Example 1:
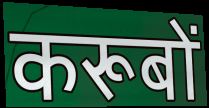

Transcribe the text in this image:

करूबों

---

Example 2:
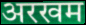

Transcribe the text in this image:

अरखम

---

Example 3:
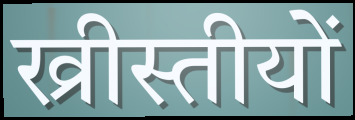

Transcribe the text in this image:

ख्रीस्तीयों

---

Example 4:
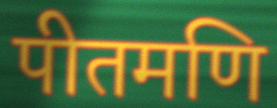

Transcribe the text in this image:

पीतमणि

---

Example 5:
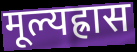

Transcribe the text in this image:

मूल्यह्रास